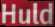
Huld